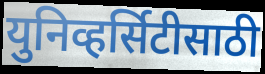
युनिव्हर्सिटीसाठी